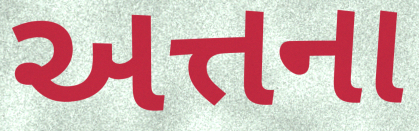
અત્તના